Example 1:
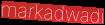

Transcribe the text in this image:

markadwadi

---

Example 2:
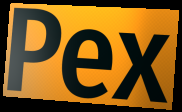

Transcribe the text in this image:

Pex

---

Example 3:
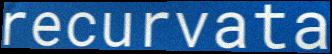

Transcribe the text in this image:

recurvata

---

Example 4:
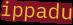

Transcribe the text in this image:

ippadu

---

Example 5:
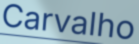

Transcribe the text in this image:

Carvalho